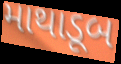
માથાડૂબ